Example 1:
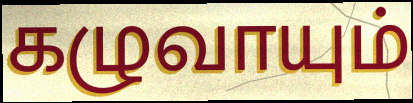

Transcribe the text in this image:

கழுவாயும்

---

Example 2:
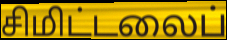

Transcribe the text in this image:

சிமிட்டலைப்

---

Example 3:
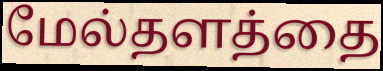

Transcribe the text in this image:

மேல்தளத்தை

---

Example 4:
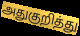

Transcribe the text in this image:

அதுகுறித்து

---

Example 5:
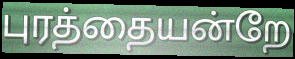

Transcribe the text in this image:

புரத்தையன்றே